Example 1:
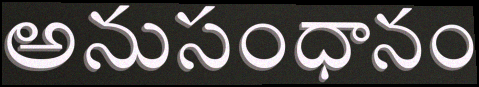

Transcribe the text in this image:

అనుసంధానం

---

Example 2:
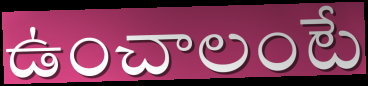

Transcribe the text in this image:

ఉంచాలంటే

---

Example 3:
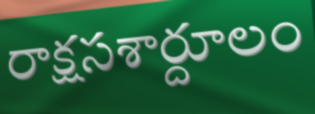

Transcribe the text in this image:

రాక్షసశార్దూలం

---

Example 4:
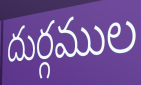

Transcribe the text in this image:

దుర్గముల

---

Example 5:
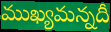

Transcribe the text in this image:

ముఖ్యమన్నదీ